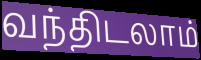
வந்திடலாம்